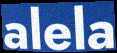
alela